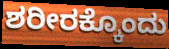
ಶರೀರಕ್ಕೊಂದು